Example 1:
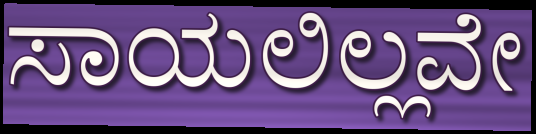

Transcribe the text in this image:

ಸಾಯಲಿಲ್ಲವೇ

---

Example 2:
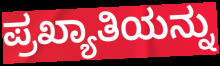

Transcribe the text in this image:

ಪ್ರಖ್ಯಾತಿಯನ್ನು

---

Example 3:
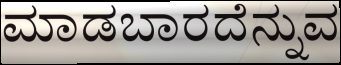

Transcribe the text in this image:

ಮಾಡಬಾರದೆನ್ನುವ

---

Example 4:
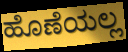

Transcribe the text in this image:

ಹೊಣೆಯಲ್ಲ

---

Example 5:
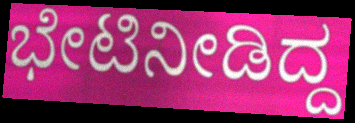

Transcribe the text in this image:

ಭೇಟಿನೀಡಿದ್ದ